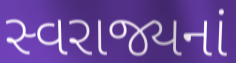
સ્વરાજ્યનાં